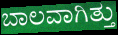
ಬಾಲವಾಗಿತ್ತು